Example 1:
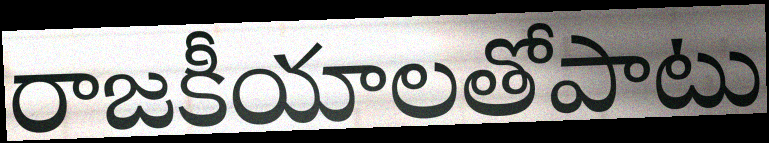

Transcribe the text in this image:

రాజకీయాలతోపాటు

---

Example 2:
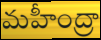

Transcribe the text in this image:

మహీంద్రా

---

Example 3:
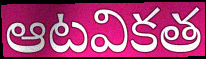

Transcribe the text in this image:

ఆటవికత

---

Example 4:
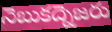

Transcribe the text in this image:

నెబుకద్నెజరు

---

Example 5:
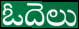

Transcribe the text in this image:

ఓదెలు